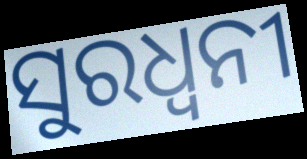
ସୁରଧ୍ୱନୀ